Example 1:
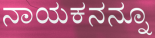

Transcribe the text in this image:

ನಾಯಕನನ್ನೂ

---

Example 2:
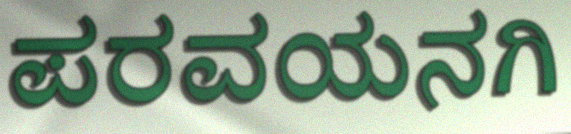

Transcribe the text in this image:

ಪರವಯನಗಿ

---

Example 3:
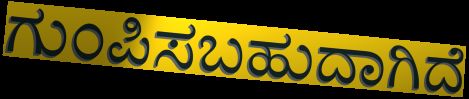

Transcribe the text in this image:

ಗುಂಪಿಸಬಹುದಾಗಿದೆ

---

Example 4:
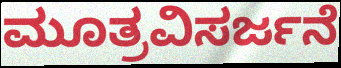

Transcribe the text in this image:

ಮೂತ್ರವಿಸರ್ಜನೆ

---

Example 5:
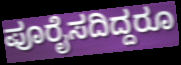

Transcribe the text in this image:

ಪೂರೈಸದಿದ್ದರೂ